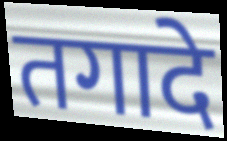
तगादे